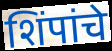
शिंपांचे